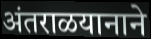
अंतराळयानाने